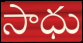
సాధు